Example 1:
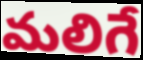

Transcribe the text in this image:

మలిగే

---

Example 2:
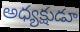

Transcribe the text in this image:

అధ్యక్షుడూ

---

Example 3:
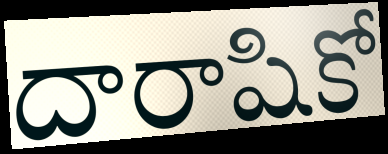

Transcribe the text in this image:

దారాషికో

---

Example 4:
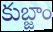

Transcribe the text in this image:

కుబ్జాం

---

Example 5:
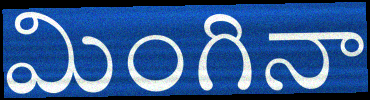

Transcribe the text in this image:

మింగినా